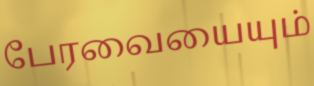
பேரவையையும்